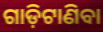
ଗାଡ଼ିଟାଣିବା